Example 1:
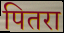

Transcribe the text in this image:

पितरा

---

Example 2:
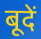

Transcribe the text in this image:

बूदें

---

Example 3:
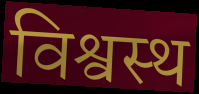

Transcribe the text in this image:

विश्वस्थ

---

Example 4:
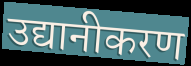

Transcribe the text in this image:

उद्यानीकरण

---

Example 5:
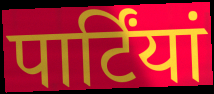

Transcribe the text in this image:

पार्टिंयां